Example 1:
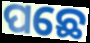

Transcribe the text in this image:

ପଛେ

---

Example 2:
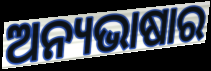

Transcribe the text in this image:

ଅନ୍ୟଭାଷାର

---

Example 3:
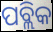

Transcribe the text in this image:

ପବ୍ଲିକ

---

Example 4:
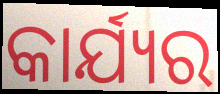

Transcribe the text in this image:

କାର୍ଯ୍ୟର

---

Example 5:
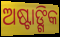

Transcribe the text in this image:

ଅଷ୍ଟାଙ୍ଗିକ